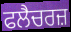
ਫਲੈਚਰਜ਼